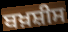
ਬਖ਼ਸ਼ੀਸ